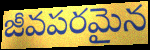
జీవపరమైన